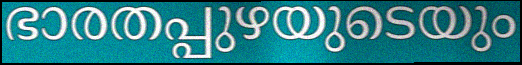
ഭാരതപ്പുഴയുടെയും